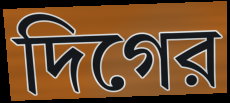
দিগের